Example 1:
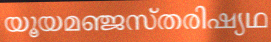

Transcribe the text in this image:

യൂയമഞ്ജസ്തരിഷ്യഥ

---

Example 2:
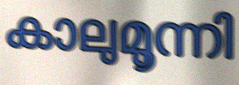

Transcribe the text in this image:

കാലുമൂന്നി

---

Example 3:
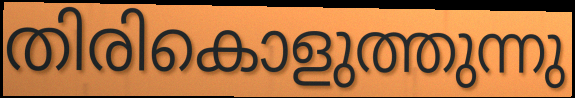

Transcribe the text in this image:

തിരികൊളുത്തുന്നു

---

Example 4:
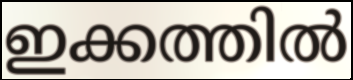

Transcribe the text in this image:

ഇക്കത്തിൽ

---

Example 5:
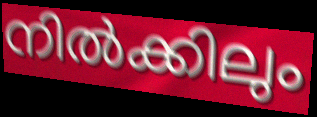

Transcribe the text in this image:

നിൽക്കിലും